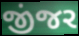
જીંજર